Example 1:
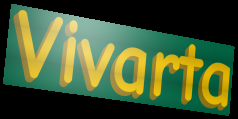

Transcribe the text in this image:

Vivarta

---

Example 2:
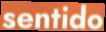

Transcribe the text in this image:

sentido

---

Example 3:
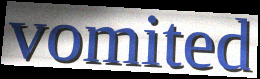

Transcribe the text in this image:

vomited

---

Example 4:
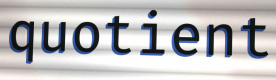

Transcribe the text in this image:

quotient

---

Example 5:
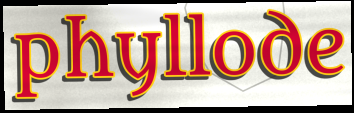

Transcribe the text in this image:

phyllode